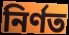
নির্ণত